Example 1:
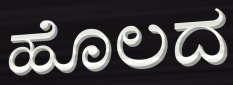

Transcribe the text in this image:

ಹೊಲದ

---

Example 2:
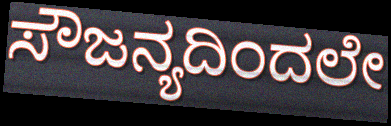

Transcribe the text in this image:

ಸೌಜನ್ಯದಿಂದಲೇ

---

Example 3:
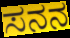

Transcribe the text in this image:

ಸನನ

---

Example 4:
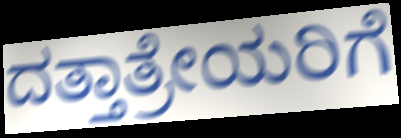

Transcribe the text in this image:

ದತ್ತಾತ್ರೇಯರಿಗೆ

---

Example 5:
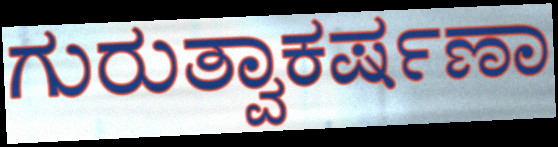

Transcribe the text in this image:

ಗುರುತ್ವಾಕರ್ಷಣಾ